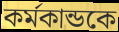
কর্মকান্ডকে